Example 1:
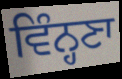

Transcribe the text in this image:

ਵਿੰਨ੍ਹਣਾ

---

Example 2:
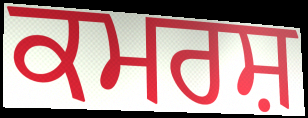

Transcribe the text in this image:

ਕਮਰਸ਼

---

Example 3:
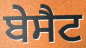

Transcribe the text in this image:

ਬੇਸੈਟ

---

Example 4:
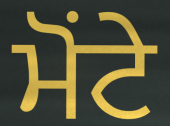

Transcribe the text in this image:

ਮੋਂਟੇ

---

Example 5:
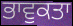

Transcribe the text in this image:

ਭਾਵੁਕਤਾ